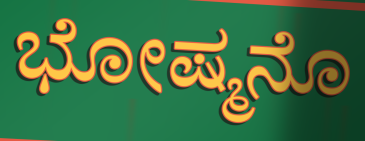
ಭೋಷ್ಮನೊ